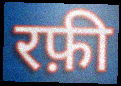
रफ़ी